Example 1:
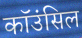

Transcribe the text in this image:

कॉउंसिल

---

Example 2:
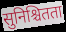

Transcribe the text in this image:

सुनिश्चितता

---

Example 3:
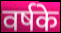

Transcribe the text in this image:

वर्षके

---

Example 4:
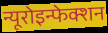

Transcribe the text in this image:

न्यूरोइन्फेक्शन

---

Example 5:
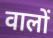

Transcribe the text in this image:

वालों